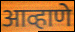
आव्हाणे